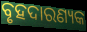
ବୃହଦାରଣ୍ୟକ